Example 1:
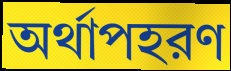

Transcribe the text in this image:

অর্থাপহরণ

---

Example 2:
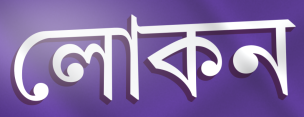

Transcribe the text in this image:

লোকন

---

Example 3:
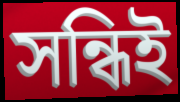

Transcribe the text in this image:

সন্ধিই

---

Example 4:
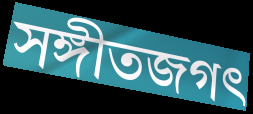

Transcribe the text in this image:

সঙ্গীতজগৎ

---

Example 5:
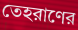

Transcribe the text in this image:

তেহরাণের